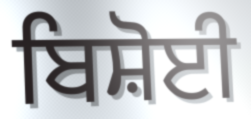
ਬਿਸ਼ੋਈ